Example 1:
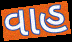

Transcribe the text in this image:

વાહ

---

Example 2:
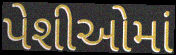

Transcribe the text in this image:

પેશીઓમાં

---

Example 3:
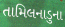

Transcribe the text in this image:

તામિલનાડુના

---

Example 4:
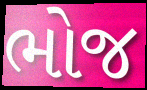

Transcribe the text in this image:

ભોજ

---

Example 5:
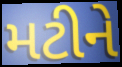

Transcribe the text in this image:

મટીને